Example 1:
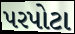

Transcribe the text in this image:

પરપોટા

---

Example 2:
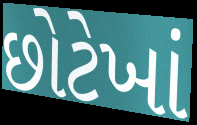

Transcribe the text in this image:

છોટેખાં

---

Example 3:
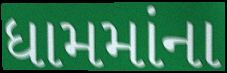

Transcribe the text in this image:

ધામમાંના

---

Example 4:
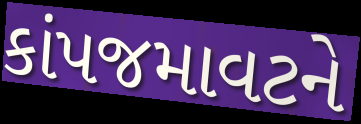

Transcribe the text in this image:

કાંપજમાવટને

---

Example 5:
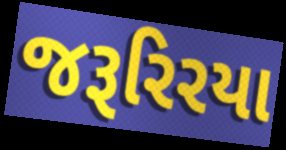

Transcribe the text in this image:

જરૂરિરયા